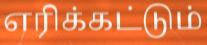
எரிக்கட்டும்